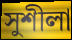
সুশীলা